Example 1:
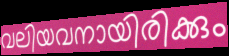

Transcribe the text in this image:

വലിയവനായിരിക്കും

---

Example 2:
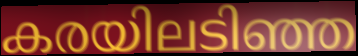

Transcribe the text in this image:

കരയിലടിഞ്ഞ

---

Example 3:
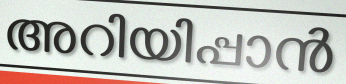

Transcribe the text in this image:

അറിയിപ്പാൻ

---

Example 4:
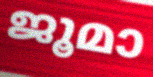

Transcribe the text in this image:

ജൂമാ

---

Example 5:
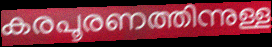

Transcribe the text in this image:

കരപൂരണത്തിന്നുള്ള